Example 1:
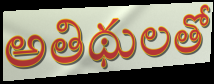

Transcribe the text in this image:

అతిథులతో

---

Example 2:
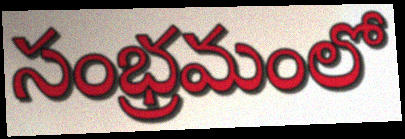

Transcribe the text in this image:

సంభ్రమంలో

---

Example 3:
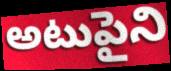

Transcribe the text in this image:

అటుపైని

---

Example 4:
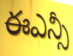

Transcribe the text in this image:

ఈఎన్సీ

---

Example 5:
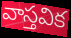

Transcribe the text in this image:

వాస్తవిక